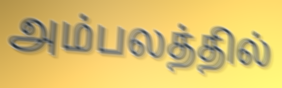
அம்பலத்தில்